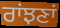
ਰਾਂਝਣਾਂ